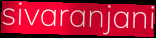
sivaranjani